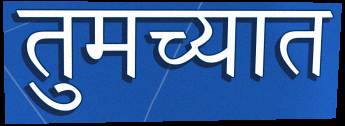
तुमच्यात